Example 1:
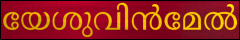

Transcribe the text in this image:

യേശുവിൻമേൽ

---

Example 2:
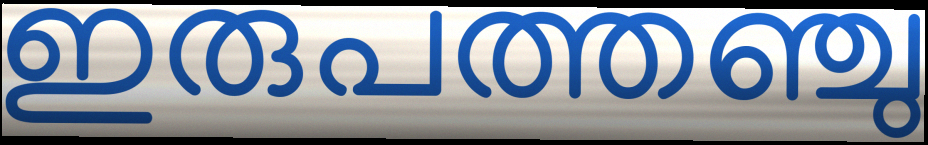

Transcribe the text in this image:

ഇരുപത്തഞ്ചു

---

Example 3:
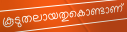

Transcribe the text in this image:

കൂടുതലായതുകൊണ്ടാണ്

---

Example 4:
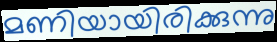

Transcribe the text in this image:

മണിയായിരിക്കുന്നു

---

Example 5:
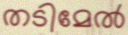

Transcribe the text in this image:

തടിമേൽ